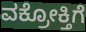
ವಕ್ರೋಕ್ತಿಗೆ